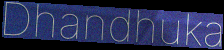
Dhandhuka